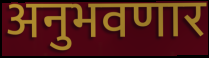
अनुभवणार